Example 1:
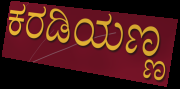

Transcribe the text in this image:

ಕರಡಿಯಣ್ಣ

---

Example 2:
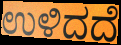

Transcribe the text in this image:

ಉಳಿದದೆ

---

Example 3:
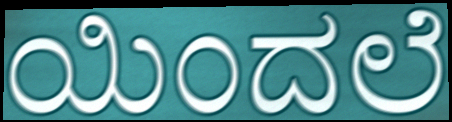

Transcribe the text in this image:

ಯಿಂದಲೆ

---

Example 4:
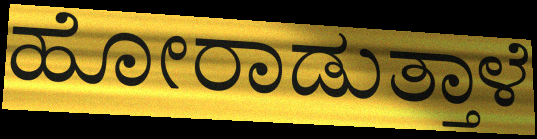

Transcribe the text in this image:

ಹೋರಾಡುತ್ತಾಳೆ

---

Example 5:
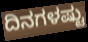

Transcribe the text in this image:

ದಿನಗಳಷ್ಟು